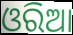
ଓରିଆ